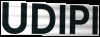
UDIPI